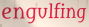
engulfing